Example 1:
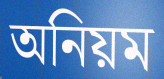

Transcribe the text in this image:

অনিয়ম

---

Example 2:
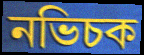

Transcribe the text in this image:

নভিচক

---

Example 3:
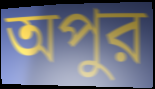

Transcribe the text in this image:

অপুর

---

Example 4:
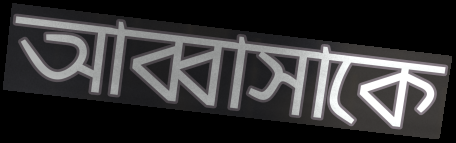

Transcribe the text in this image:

আব্বাসাকে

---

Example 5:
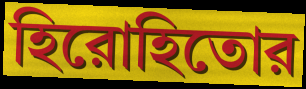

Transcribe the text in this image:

হিরোহিতোর